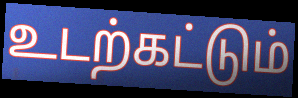
உடற்கட்டும்